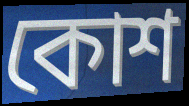
কোশ